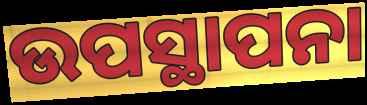
ଉପସ୍ଥାପନା